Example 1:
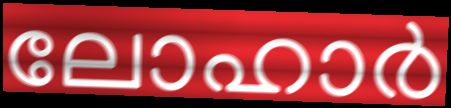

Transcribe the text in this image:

ലോഹാർ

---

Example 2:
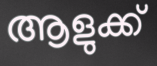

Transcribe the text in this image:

ആളുക്ക്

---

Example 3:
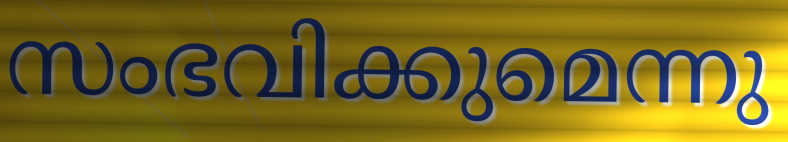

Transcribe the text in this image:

സംഭവിക്കുമെന്നു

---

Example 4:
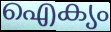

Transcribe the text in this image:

ഐക്യം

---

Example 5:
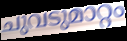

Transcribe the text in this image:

ചുവടുമാറ്റം